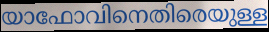
യാഫോവിനെതിരെയുള്ള